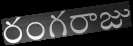
రంగరాజు